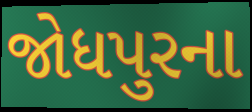
જોધપુરના